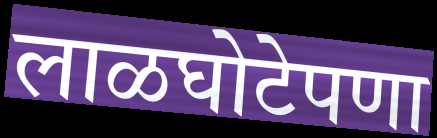
लाळघोटेपणा